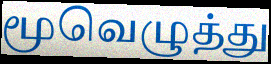
மூவெழுத்து